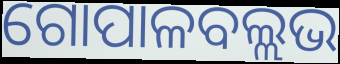
ଗୋପାଳବଲ୍ଲଭ